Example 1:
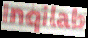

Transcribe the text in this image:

Inqilab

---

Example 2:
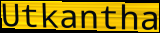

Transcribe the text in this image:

Utkantha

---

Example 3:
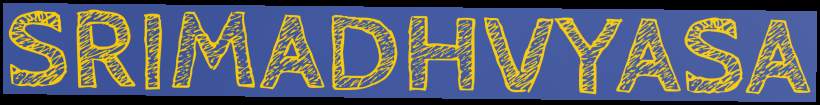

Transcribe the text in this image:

SRIMADHVYASA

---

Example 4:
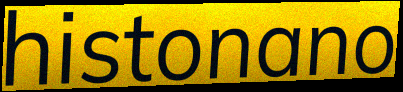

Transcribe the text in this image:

histonano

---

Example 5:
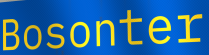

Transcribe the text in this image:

Bosonter